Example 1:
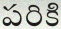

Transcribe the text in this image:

పరికి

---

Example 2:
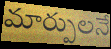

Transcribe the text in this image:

మార్పులనే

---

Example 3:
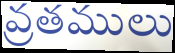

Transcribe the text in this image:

వ్రతములు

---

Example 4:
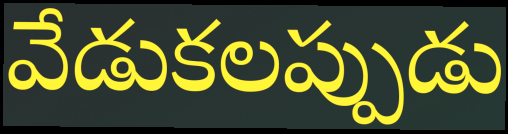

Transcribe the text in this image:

వేడుకలప్పుడు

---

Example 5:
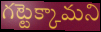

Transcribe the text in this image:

గట్టెక్కామని